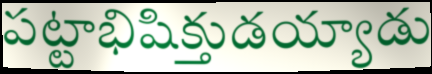
పట్టాభిషిక్తుడయ్యాడు